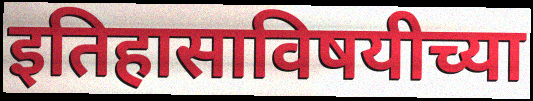
इतिहासाविषयीच्या